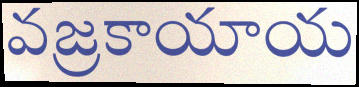
వజ్రకాయాయ